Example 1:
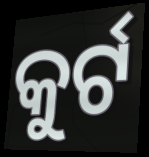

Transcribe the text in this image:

କୁର୍ଟ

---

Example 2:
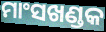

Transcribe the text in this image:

ମାଂସଖଣ୍ଡକ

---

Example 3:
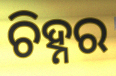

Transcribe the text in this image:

ଚିହ୍ନର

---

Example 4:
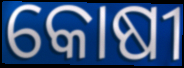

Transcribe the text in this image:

କୋଷୀ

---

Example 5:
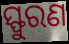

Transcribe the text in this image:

ସ୍ଫୁରଣ